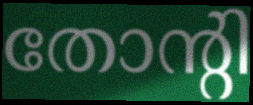
തോന്റി